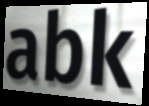
abk